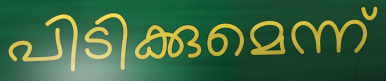
പിടിക്കുമെന്ന്